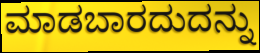
ಮಾಡಬಾರದುದನ್ನು